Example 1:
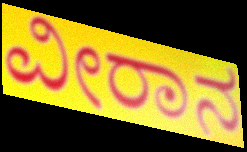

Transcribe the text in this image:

ವೀರಾನ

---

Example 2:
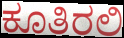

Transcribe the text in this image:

ಕೂತಿರಲಿ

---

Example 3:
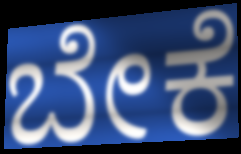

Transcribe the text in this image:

ಬೇಕೆ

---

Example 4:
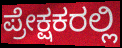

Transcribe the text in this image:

ಪ್ರೇಕ್ಷಕರಲ್ಲಿ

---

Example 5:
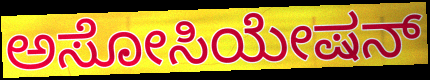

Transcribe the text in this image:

ಅಸೋಸಿಯೇಷನ್